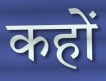
कहों